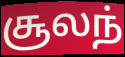
சூலந்